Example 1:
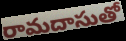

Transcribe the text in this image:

రామదాసుతో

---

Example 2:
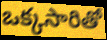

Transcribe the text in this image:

ఒక్కసారితో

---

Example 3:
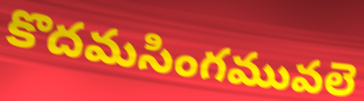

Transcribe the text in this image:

కొదమసింగమువలె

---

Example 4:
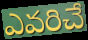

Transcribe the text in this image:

ఎవరిచే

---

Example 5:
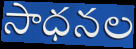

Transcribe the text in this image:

సాధనల